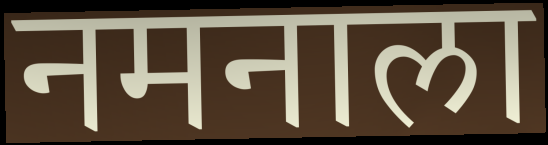
नमनाला